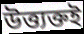
উত্ত্যক্তই